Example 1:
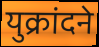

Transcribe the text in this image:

युक्रांदने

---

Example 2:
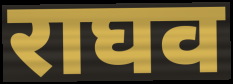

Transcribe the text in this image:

राघव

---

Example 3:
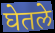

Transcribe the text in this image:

घेतले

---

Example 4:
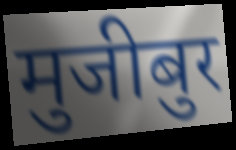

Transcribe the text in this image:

मुजीबुर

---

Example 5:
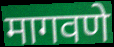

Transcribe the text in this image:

मागवणे